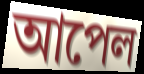
আপেল